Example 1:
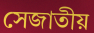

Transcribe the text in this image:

সেজাতীয়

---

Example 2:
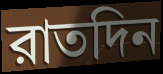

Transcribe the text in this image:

রাতদিন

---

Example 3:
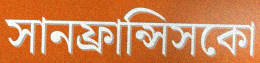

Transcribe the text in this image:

সানফ্রান্সিসকো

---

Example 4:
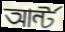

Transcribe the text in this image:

আর্ন্ট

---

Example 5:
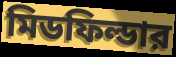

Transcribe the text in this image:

মিডফিল্ডার